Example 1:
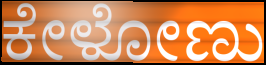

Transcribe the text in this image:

ಕೇಳೋಣು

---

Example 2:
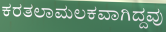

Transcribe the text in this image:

ಕರತಲಾಮಲಕವಾಗಿದ್ದವು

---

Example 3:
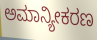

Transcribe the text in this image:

ಅಮಾನ್ಯೀಕರಣ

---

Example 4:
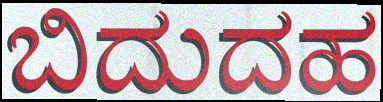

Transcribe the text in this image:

ಬಿದುದಹ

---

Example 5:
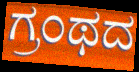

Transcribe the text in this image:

ಗ್ರಂಥದ